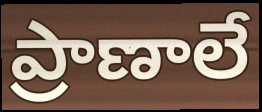
ప్రాణాలే